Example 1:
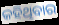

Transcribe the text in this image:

କହିଥିବାର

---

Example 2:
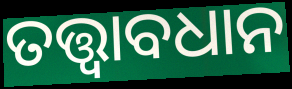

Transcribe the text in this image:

ତତ୍ତ୍ବାବଧାନ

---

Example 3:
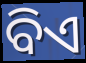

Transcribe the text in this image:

ବିଏ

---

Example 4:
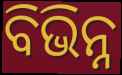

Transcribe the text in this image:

ବିଭିନ୍ନ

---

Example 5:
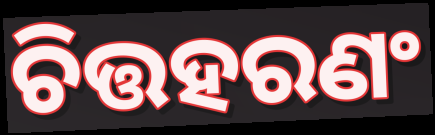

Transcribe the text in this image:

ଚିତ୍ତହରଣଂ